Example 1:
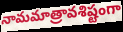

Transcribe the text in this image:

నామమాత్రావశిష్టంగా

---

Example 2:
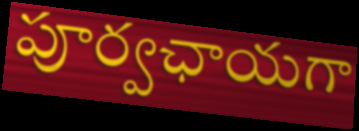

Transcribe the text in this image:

పూర్వఛాయగా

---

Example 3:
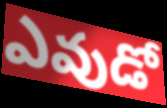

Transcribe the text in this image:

ఎవుడో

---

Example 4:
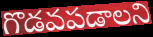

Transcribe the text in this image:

గొడవపడాలని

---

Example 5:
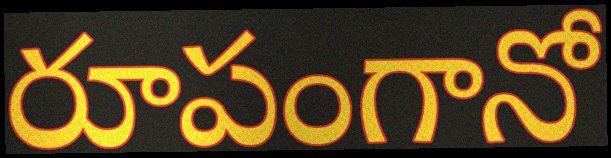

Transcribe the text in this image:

రూపంగానో